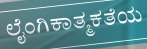
ಲೈಂಗಿಕಾತ್ಮಕತೆಯ